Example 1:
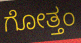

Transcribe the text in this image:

ಗೋತ್ತಂ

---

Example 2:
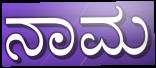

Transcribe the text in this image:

ನಾಮ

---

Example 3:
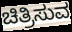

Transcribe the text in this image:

ಚಿತ್ರಿಸುವ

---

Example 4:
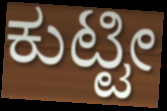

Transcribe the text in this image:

ಕುಟ್ಟೀ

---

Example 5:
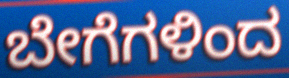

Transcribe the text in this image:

ಬೇಗೆಗಳಿಂದ